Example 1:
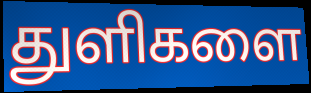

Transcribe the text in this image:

துளிகளை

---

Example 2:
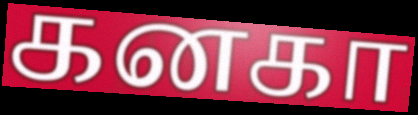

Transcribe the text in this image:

கனகா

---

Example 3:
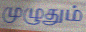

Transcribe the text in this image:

முழுதும்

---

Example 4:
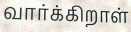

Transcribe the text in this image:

வார்க்கிறாள்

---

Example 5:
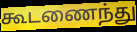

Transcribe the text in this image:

கூடணைந்து